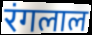
रंगलाल